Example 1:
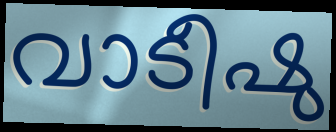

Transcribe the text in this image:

വാടീഷു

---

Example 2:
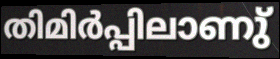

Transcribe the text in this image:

തിമിർപ്പിലാണു്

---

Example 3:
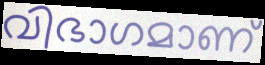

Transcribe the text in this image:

വിഭാഗമാണ്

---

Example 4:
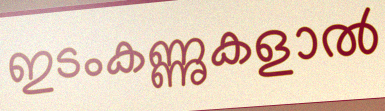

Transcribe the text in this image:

ഇടംകണ്ണുകളാൽ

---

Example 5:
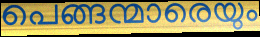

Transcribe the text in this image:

പെങ്ങന്മാരെയും